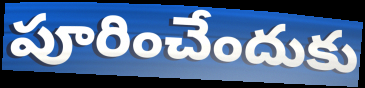
పూరించేందుకు